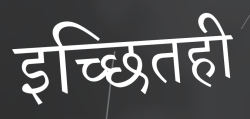
इच्छितही